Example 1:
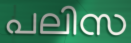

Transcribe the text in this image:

പലിസ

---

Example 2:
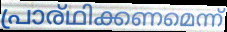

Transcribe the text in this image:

പ്രാര്ഥിക്കണമെന്ന്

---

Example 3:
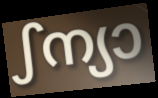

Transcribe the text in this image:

ഽന്യാ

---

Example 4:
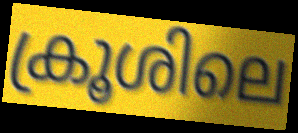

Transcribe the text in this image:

ക്രൂശിലെ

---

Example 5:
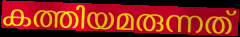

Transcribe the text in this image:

കത്തിയമരുന്നത്